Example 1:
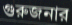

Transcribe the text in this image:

গুরুজনার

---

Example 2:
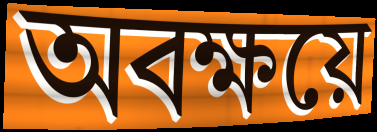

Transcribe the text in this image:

অবক্ষয়ে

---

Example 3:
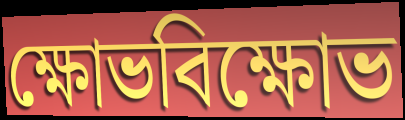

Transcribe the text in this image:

ক্ষোভবিক্ষোভ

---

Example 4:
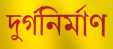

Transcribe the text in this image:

দুর্গনির্মাণ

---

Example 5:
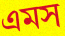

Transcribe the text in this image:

এমস